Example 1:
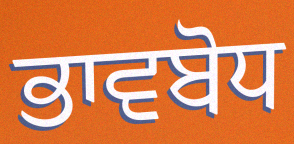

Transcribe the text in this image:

ਭਾਵਬੋਧ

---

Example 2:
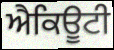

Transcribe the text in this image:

ਐਕਿਊਟੀ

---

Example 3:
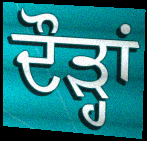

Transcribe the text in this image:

ਦੌੜ੍ਹਾਂ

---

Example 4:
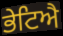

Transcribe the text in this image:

ਭੇਟਿਐ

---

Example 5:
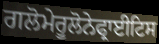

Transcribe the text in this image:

ਗਲੋਮੇਰੂਲੋਨੇਫ੍ਰਾਈਟਿਸ